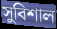
সুবিশাল